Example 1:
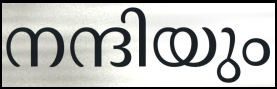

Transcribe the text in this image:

നന്ദിയും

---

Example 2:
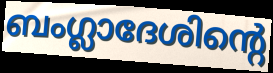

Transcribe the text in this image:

ബംഗ്ലാദേശിന്റെ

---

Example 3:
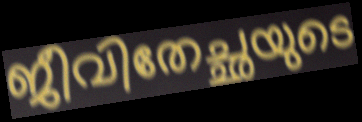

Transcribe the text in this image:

ജീവിതേച്ഛയുടെ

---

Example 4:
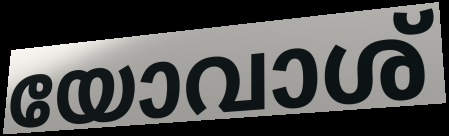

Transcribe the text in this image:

യോവാശ്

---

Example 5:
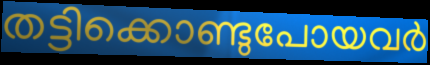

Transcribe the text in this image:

തട്ടിക്കൊണ്ടുപോയവർ